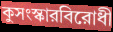
কুসংস্কারবিরোধী